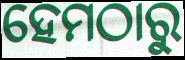
ହେମଠାରୁ